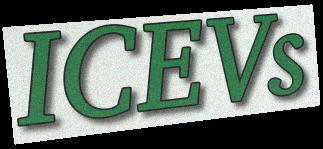
ICEVs